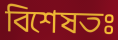
বিশেষতঃ